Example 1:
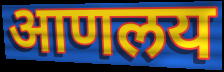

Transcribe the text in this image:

आणलय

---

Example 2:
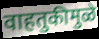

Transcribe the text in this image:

वाहतुकीमुळे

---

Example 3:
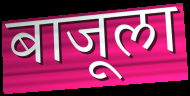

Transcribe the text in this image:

बाजूला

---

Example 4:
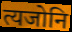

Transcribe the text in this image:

त्यजोनि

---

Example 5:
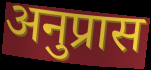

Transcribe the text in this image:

अनुप्रास